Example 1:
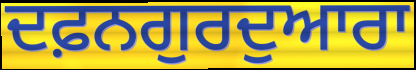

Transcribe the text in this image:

ਦਫ਼ਨਗੁਰਦੁਆਰਾ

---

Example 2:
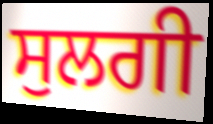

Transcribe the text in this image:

ਸੁਲਗੀ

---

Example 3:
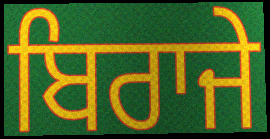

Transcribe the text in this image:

ਬਿਰਾਜੇ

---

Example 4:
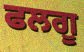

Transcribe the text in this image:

ਫਲਗੂ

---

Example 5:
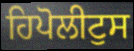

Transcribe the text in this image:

ਹਿਪੋਲੀਟੁਸ